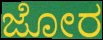
ಜೋರ